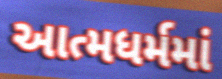
આત્મધર્મમાં